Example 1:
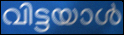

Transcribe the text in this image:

വിട്ടയാൾ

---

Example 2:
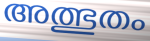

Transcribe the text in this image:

അത്ഭുതം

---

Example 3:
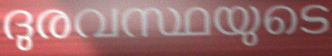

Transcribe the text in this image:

ദുരവസ്ഥയുടെ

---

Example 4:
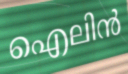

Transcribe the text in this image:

ഐലിൻ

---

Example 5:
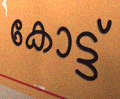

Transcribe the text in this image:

കോട്ട്